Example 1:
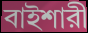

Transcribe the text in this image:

বাইশারী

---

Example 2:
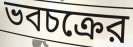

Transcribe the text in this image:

ভবচক্রের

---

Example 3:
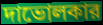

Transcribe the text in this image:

দাভোলকার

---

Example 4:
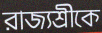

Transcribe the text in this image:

রাজ্যশ্রীকে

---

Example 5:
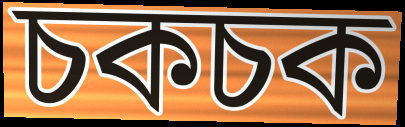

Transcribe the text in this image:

চকচক